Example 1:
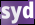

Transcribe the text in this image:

syd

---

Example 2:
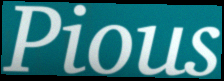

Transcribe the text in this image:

Pious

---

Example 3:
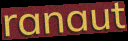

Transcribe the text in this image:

ranaut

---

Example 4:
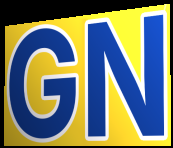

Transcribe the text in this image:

GN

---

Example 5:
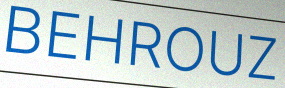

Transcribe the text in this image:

BEHROUZ